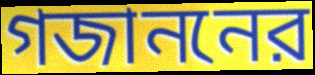
গজাননের